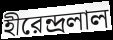
হীরেন্দ্রলাল